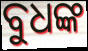
ବୁଧଙ୍କ